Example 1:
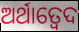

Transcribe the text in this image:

ଅର୍ଥାତ୍ବେଦ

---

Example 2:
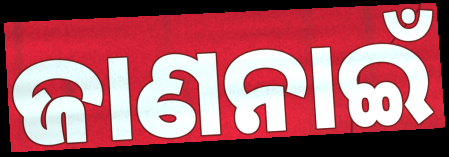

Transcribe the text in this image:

ଜାଣନାଇଁ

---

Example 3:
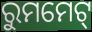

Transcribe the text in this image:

ରୁମମେଟ୍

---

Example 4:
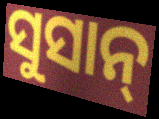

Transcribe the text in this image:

ସୁସାନ୍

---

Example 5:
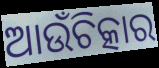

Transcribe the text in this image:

ଆଉଁଚିତ୍କାର